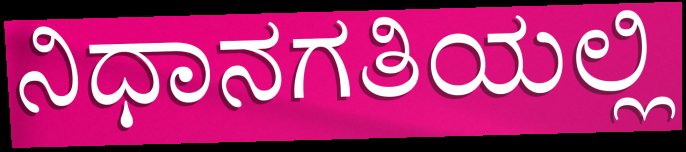
ನಿಧಾನಗತಿಯಲ್ಲಿ